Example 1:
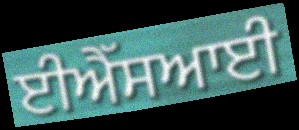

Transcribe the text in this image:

ਈਐੱਸਆਈ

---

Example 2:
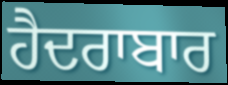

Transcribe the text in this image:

ਹੈਦਰਾਬਾਰ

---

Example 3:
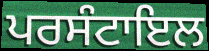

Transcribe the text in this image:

ਪਰਸੰਟਾਇਲ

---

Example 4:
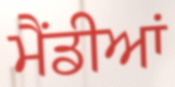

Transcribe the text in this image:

ਮੈਂਡੀਆਂ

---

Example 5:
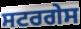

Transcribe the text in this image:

ਸਟਰਗੇਸ